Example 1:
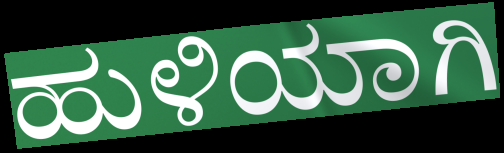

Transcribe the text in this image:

ಹುಳಿಯಾಗಿ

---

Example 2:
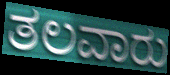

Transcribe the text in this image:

ತಲವಾರು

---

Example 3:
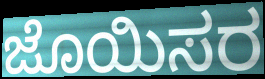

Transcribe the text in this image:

ಜೊಯಿಸರ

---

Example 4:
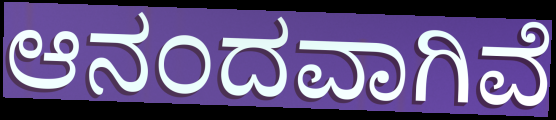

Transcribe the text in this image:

ಆನಂದವಾಗಿವೆ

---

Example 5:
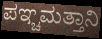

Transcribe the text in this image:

ಪಞ್ಚಮತ್ತಾನಿ